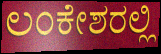
ಲಂಕೇಶರಲ್ಲಿ